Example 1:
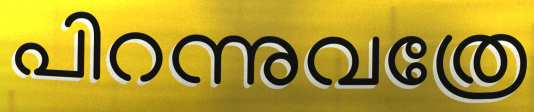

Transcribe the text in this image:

പിറന്നുവത്രേ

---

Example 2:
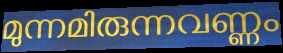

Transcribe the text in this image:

മുന്നമിരുന്നവണ്ണം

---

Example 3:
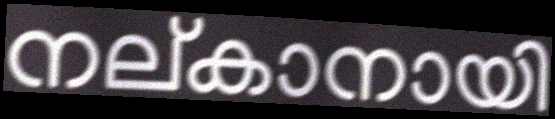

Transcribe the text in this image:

നല്കാനായി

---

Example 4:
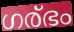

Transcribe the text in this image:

ഗര്ഭം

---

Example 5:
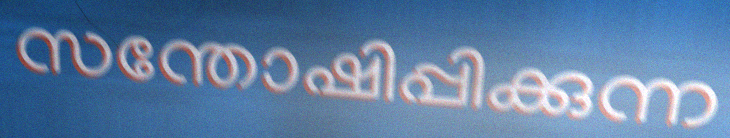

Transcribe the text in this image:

സന്തോഷിപ്പിക്കുന്ന